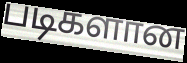
படிகளான